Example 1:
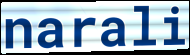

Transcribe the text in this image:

narali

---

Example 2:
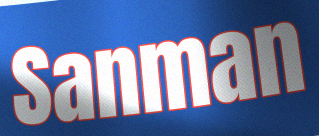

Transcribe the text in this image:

Sanman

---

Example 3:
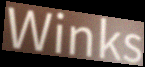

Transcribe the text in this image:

Winks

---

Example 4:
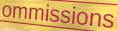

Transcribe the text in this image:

ommissions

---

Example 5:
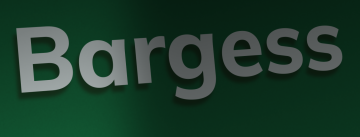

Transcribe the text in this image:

Bargess